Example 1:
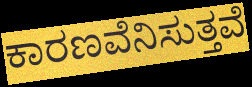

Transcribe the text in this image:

ಕಾರಣವೆನಿಸುತ್ತವೆ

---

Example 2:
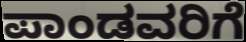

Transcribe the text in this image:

ಪಾಂಡವರಿಗೆ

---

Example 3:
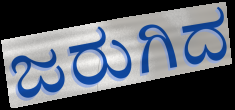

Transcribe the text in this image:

ಜರುಗಿದ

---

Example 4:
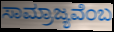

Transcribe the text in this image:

ಸಾಮ್ರಾಜ್ಯವೆಂಬ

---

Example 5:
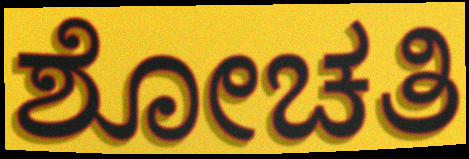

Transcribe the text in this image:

ಶೋಚತಿ